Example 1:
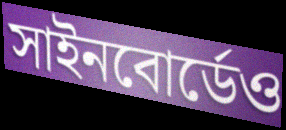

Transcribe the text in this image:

সাইনবোর্ডেও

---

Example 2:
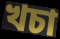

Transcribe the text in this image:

খচা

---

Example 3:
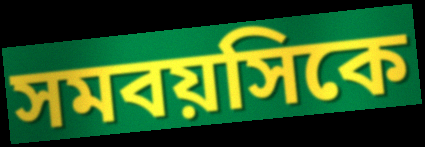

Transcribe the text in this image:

সমবয়সিকে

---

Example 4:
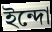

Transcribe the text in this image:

ইন্দো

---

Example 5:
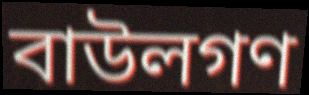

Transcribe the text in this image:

বাউলগণ